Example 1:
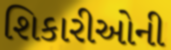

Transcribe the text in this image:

શિકારીઓની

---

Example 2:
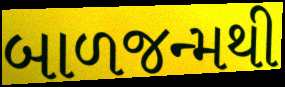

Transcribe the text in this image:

બાળજન્મથી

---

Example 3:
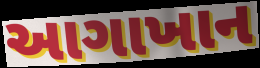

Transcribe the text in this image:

આગાખાન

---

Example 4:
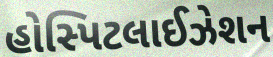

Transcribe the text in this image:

હોસ્પિટલાઈઝેશન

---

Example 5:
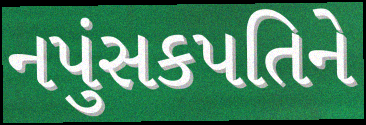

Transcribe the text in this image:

નપુંસકપતિને